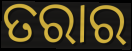
ତରାର